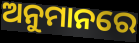
ଅନୁମାନରେ